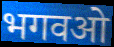
भगवओ